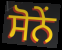
ਸੋਨੇਂ